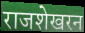
राजशेखरन